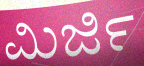
ಮಿರ್ಜಿ